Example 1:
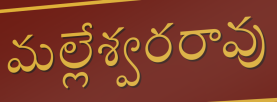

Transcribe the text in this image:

మల్లేశ్వరరావు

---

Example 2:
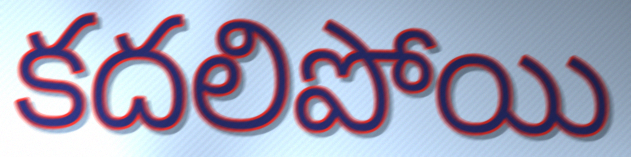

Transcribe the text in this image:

కదలిపోయి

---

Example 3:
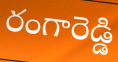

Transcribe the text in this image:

రంగారెడ్డి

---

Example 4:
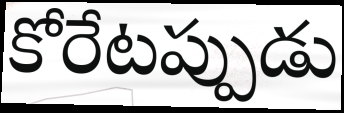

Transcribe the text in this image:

కోరేటప్పుడు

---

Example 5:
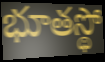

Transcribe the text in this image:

భూతస్థో